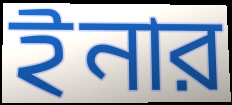
ইনার